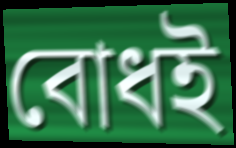
বোধই